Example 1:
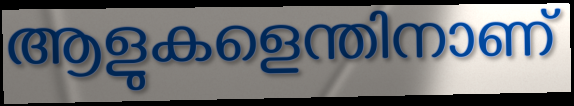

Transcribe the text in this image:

ആളുകളെന്തിനാണ്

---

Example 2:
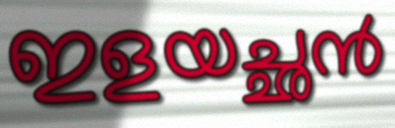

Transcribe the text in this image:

ഇളയച്ഛൻ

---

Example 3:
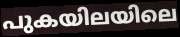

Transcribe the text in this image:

പുകയിലയിലെ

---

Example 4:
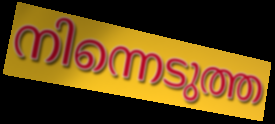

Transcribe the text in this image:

നിന്നെടുത്ത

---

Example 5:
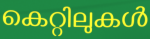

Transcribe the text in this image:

കെറ്റിലുകൾ